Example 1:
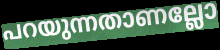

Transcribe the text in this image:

പറയുന്നതാണല്ലോ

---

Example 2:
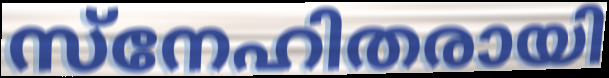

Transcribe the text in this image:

സ്നേഹിതരായി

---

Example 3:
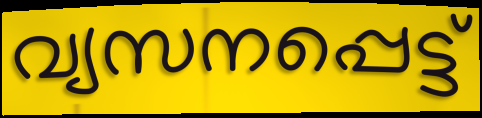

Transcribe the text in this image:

വ്യസനപ്പെട്ട്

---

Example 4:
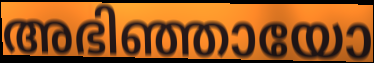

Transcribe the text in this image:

അഭിഞ്ഞായോ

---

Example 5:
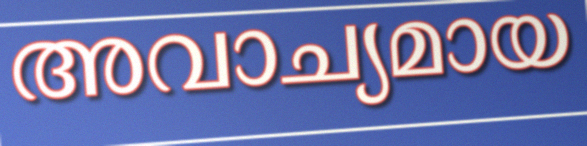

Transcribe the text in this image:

അവാച്യമായ